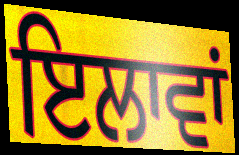
ਇਲਾਵਾਂ